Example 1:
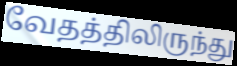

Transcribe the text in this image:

வேதத்திலிருந்து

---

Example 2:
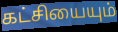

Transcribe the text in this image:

கட்சியையும்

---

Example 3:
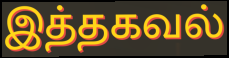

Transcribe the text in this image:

இத்தகவல்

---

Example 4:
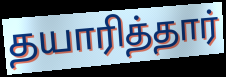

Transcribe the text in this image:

தயாரித்தார்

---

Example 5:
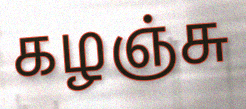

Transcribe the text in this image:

கழஞ்சு